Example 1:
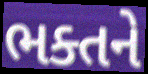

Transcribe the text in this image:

ભક્તને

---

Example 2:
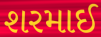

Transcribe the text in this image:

શરમાઈ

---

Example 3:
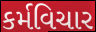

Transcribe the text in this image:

કર્મવિચાર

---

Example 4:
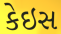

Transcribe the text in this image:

કેઇસ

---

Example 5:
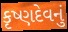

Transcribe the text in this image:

કૃષ્ણદેવનું